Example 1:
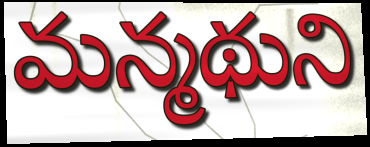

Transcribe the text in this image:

మన్మథుని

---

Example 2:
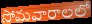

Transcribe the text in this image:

సోమవారాలలో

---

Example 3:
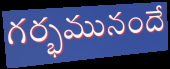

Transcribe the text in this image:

గర్భమునందే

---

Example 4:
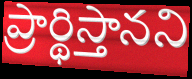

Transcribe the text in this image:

ప్రార్థిస్తానని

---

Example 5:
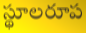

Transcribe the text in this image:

స్థూలరూప